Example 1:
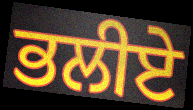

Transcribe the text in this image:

ਭਲੀਏ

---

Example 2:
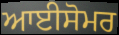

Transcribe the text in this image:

ਆਈਸੋਮਰ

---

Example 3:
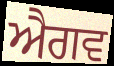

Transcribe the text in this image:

ਐਗਵ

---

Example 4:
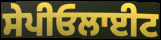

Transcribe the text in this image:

ਸੇਪੀਓਲਾਈਟ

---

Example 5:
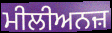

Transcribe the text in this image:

ਮੀਲੀਅਨਜ਼